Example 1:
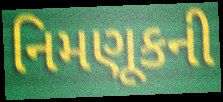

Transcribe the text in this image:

નિમણૂકની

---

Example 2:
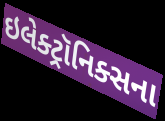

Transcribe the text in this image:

ઇલેક્ટ્રૉનિક્સના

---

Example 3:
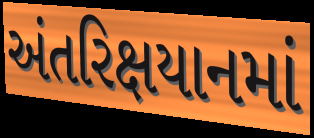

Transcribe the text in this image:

અંતરિક્ષયાનમાં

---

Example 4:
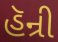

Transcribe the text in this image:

હૅન્રી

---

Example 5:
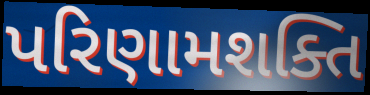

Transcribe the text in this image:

પરિણામશક્તિ